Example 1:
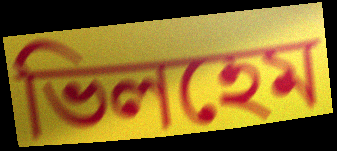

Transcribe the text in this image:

ভিলহেম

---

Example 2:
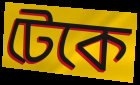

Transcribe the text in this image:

টেকে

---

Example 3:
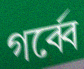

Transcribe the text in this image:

গর্ব্বে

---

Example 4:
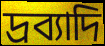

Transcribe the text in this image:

দ্রব্যাদি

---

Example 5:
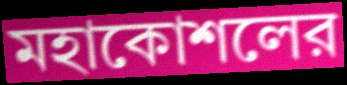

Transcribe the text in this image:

মহাকোশলের